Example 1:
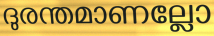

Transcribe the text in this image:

ദുരന്തമാണല്ലോ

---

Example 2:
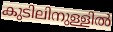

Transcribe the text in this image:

കുടിലിനുള്ളിൽ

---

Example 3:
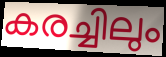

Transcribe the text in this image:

കരച്ചിലും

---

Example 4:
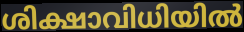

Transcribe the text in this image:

ശിക്ഷാവിധിയിൽ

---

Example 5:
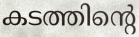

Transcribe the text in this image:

കടത്തിന്റെ